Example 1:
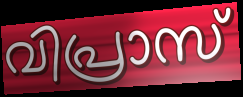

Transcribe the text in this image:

വിപ്രാസ്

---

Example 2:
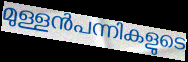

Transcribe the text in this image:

മുള്ളൻപന്നികളുടെ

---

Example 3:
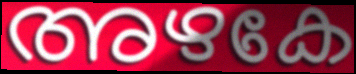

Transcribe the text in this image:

അഴകേ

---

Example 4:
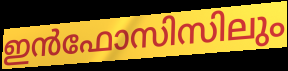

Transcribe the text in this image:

ഇൻഫോസിസിലും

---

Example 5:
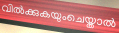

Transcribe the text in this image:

വിൽക്കുകയുംചെയ്താൽ